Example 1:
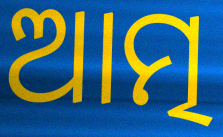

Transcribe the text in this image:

ଆତ୍ମ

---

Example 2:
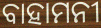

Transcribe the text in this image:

ବାହାମନୀ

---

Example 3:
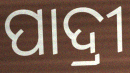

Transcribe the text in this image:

ପାଦ୍ରୀ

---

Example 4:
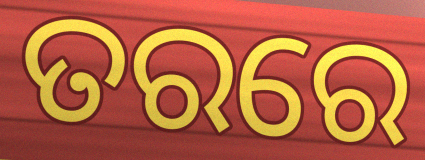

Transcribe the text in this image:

ତରରେ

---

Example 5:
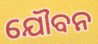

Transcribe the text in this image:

ଯୌବନ